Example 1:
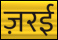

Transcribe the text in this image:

ज़रई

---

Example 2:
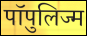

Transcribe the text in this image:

पॉपुलिज्म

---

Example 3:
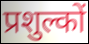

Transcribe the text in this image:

प्रशुल्कों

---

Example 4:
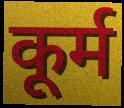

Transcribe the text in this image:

कूर्म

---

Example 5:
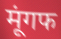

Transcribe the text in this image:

मूंगफ